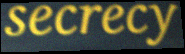
secrecy